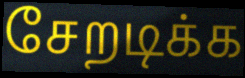
சேறடிக்க